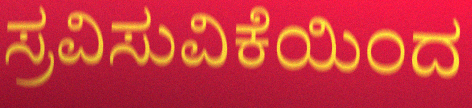
ಸ್ರವಿಸುವಿಕೆಯಿಂದ